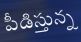
పీడిస్తున్న